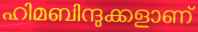
ഹിമബിന്ദുക്കളാണ്